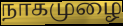
நாகமுழை